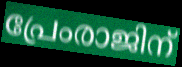
പ്രേംരാജിന്